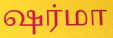
ஷர்மா